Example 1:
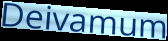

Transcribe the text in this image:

Deivamum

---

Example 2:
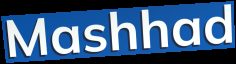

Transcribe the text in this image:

Mashhad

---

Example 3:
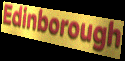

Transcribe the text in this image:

Edinborough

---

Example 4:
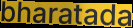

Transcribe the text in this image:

bharatada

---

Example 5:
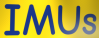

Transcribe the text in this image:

IMUs